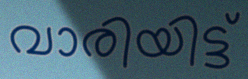
വാരിയിട്ട്